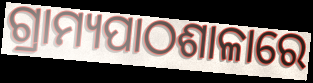
ଗ୍ରାମ୍ୟପାଠଶାଳାରେ